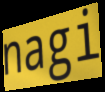
nagi